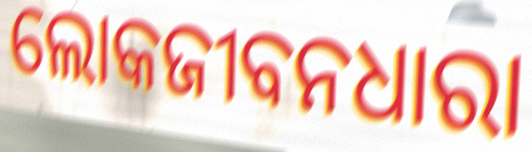
ଲୋକଜୀବନଧାରା